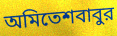
অমিতেশবাবুর